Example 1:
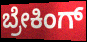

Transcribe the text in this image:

ಬ್ರೇಕಿಂಗ್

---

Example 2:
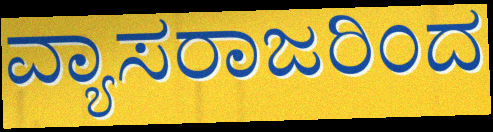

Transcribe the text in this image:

ವ್ಯಾಸರಾಜರಿಂದ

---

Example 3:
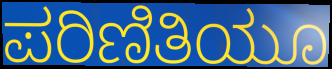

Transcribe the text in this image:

ಪರಿಣಿತಿಯೂ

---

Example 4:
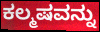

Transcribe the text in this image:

ಕಲ್ಮಷವನ್ನು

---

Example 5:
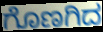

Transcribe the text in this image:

ಗೊಣಗಿದ